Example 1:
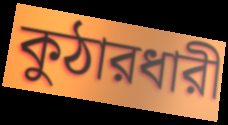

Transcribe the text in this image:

কুঠারধারী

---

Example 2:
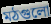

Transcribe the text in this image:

মঠগুলো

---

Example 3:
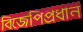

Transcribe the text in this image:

বিজেপিপ্রধান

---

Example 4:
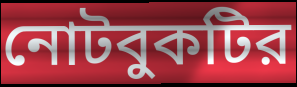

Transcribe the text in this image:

নোটবুকটির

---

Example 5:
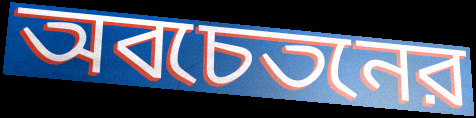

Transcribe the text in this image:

অবচেতনের